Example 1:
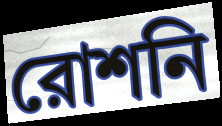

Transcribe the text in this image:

রোশনি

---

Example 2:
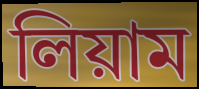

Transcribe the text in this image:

লিয়াম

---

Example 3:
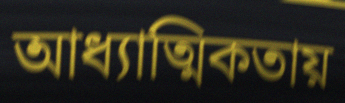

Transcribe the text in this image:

আধ্যাত্মিকতায়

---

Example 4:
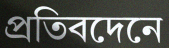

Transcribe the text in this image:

প্রতিবদেনে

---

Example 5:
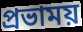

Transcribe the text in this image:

প্রভাময়